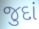
જુદાં